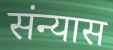
संन्यास